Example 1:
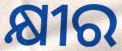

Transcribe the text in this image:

କ୍ଷୀର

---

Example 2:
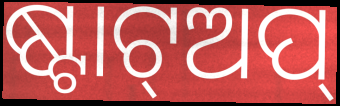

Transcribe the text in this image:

ଷ୍ଟାଟ୍ଅପ୍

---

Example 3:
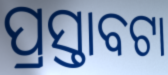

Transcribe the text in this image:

ପ୍ରସ୍ତାବଟା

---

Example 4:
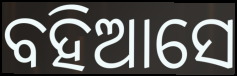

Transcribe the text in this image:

ବହିଆସେ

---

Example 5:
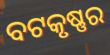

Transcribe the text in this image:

ବଟକୃଷ୍ଣର